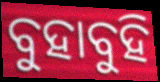
ବୁହାବୁହି